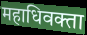
महाधिवक्ता